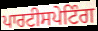
ਪਾਰਟੀਸਪੇਟਿੰਗ